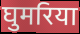
घुमरिया